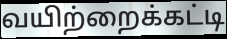
வயிற்றைக்கட்டி